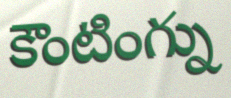
కౌంటింగ్ను